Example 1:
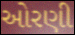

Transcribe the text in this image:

ઓરણી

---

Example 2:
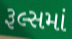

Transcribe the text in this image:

રૂલ્સમાં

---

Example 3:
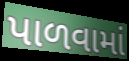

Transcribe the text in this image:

પાળવામાં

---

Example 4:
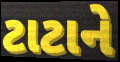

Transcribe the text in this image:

ટાટાને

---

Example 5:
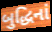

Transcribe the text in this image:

બુદ્ધિનાં